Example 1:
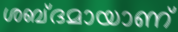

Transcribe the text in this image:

ശബ്ദമായാണ്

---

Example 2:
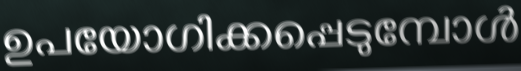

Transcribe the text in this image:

ഉപയോഗിക്കപ്പെടുമ്പോൾ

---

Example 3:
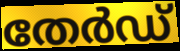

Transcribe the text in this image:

തേർഡ്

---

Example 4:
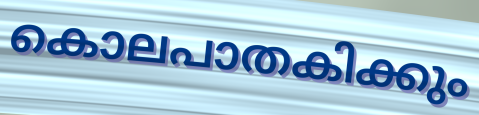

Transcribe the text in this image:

കൊലപാതകിക്കും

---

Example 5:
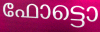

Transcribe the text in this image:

ഫോട്ടൊ